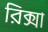
রিক্সা